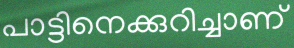
പാട്ടിനെക്കുറിച്ചാണ്